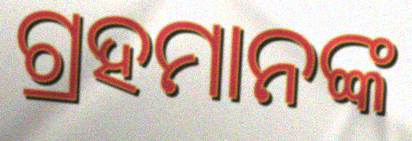
ଗ୍ରହମାନଙ୍କ